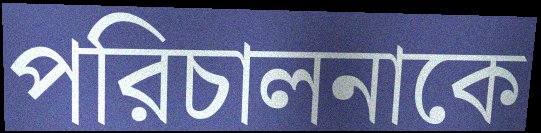
পরিচালনাকে